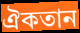
ঐকতান